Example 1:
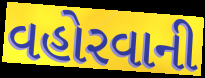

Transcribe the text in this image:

વહોરવાની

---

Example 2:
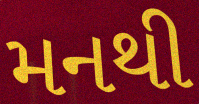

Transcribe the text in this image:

મનથી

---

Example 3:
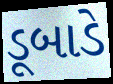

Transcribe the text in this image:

ડૂબાડે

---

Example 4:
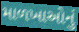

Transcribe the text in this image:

માળખાઓનું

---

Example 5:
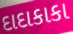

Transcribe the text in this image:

દાદાકાકા